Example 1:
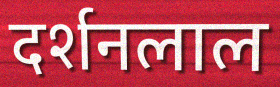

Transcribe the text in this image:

दर्शनलाल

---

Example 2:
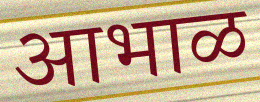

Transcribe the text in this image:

आभाळ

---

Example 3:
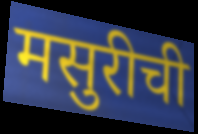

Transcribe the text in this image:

मसुरीची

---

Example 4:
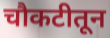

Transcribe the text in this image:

चौकटीतून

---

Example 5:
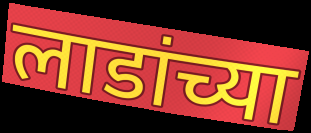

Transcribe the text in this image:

लाडांच्या